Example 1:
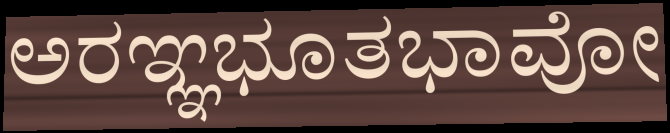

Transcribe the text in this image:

ಅರಞ್ಞಭೂತಭಾವೋ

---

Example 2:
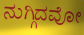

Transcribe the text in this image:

ನುಗ್ಗಿದವೋ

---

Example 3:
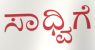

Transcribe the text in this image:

ಸಾಧ್ವಿಗೆ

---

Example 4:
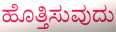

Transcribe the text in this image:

ಹೊತ್ತಿಸುವುದು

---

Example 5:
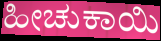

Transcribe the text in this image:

ಹೀಚುಕಾಯಿ